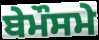
ਬੇਮੌਸਮੇ